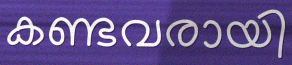
കണ്ടവരായി